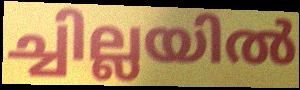
ച്ചില്ലയിൽ